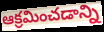
ఆక్రమించడాన్ని